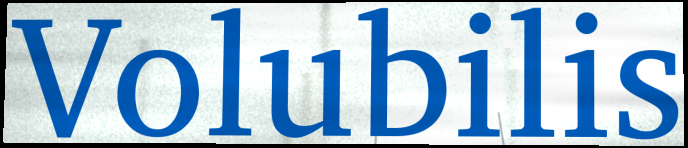
Volubilis